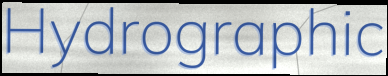
Hydrographic